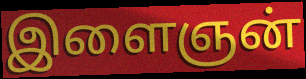
இளைஞன்